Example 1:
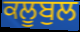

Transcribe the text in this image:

ਕਲੂਬੁਲ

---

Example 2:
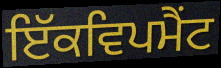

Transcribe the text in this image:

ਇੱਕਵਿਪਮੈਂਟ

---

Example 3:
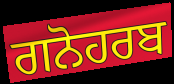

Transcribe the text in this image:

ਗਨੋਹਰਬ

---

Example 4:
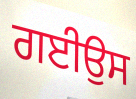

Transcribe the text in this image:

ਗਈਉਸ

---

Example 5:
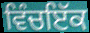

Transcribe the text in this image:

ਵਿੰਚਇੱਕ